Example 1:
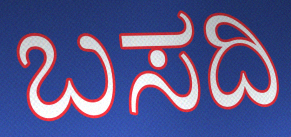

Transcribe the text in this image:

ಬಸದಿ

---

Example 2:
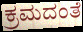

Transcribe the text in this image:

ಕ್ರಮದಂತೆ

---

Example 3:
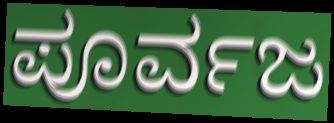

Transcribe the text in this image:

ಪೂರ್ವಜ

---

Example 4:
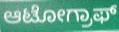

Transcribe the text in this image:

ಆಟೋಗ್ರಾಫ್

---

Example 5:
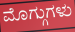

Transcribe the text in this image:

ಮೊಗ್ಗುಗಳು